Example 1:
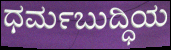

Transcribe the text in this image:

ಧರ್ಮಬುದ್ಧಿಯ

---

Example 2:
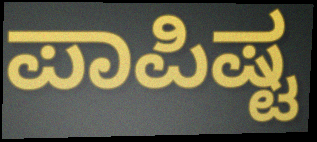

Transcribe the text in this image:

ಪಾಪಿಷ್ಟ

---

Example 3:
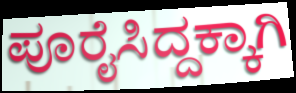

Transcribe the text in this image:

ಪೂರೈಸಿದ್ದಕ್ಕಾಗಿ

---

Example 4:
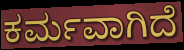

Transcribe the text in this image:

ಕರ್ಮವಾಗಿದೆ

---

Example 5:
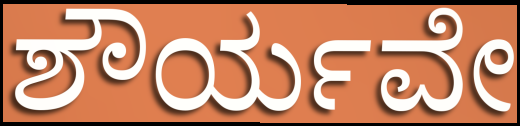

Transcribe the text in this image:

ಶೌರ್ಯವೇ